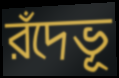
রঁদেভূ